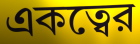
একত্বের